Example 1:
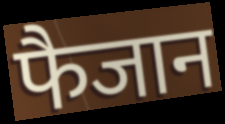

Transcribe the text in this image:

फैजान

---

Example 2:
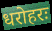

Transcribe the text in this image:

धरोहरः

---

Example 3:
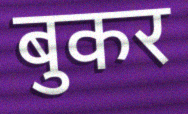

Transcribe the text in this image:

बुकर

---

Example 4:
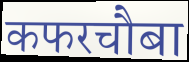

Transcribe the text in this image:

कफरचौबा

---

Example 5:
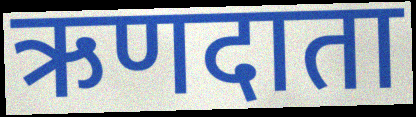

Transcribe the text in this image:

ऋणदाता